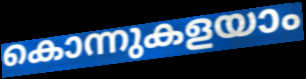
കൊന്നുകളയാം